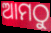
ଆମଠୁ